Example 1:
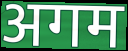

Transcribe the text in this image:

अगम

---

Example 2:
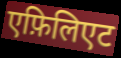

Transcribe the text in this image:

एफ़िलिएट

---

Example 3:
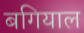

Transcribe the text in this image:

बगियाल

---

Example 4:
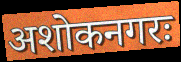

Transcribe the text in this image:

अशोकनगरः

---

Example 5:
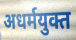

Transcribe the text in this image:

अधर्मयुक्त